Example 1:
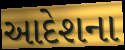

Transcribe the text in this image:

આદેશના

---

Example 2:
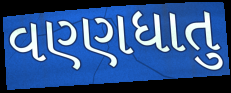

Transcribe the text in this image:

વણ્ણધાતુ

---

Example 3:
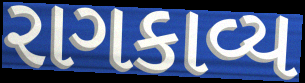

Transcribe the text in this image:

રાગકાવ્ય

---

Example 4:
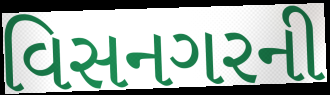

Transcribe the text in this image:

વિસનગરની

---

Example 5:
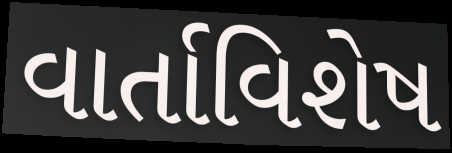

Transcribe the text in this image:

વાર્તાવિશેષ